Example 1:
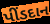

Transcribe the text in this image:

પીંડદાન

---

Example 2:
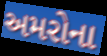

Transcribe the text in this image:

અમરોના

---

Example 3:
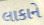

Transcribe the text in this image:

લાકાને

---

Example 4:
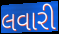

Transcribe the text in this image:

લવારી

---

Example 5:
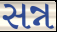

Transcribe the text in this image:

સન્ન